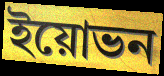
ইয়োভন